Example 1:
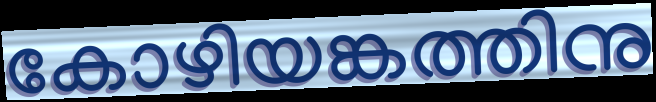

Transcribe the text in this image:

കോഴിയങ്കത്തിനു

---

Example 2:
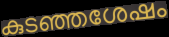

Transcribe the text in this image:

കുടഞ്ഞശേഷം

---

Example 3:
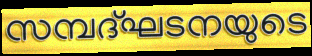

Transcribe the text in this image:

സമ്പദ്ഘടനയുടെ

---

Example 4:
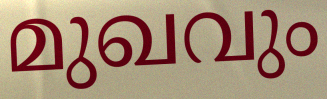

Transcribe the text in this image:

മുഖവും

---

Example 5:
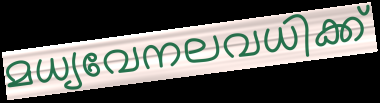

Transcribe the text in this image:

മധ്യവേനലവധിക്ക്